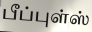
பீப்புள்ஸ்